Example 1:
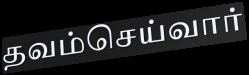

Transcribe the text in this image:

தவம்செய்வார்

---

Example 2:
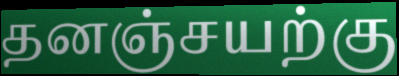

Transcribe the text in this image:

தனஞ்சயற்கு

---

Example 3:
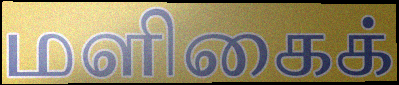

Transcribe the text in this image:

மளிகைக்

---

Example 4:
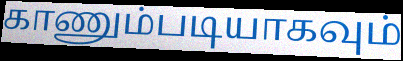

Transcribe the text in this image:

காணும்படியாகவும்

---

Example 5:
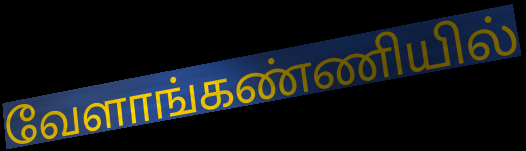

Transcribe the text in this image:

வேளாங்கண்ணியில்